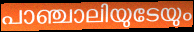
പാഞ്ചാലിയുടേയും